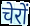
चेरों